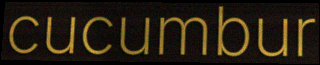
cucumbur